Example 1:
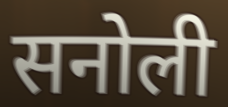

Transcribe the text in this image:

सनोली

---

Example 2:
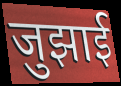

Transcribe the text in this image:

जुझाई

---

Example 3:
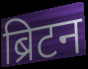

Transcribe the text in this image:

ब्रिटन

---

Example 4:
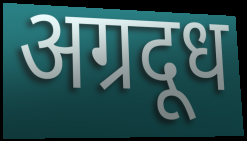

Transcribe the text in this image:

अग्रदूध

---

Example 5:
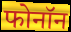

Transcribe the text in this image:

फोनॉन